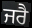
ਜਰੈ